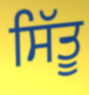
ਸਿੱਤੂ